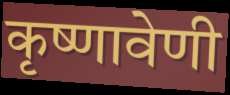
कृष्णावेणी